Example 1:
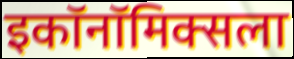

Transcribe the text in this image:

इकॉनॉमिक्सला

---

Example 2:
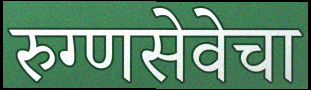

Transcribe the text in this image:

रुग्णसेवेचा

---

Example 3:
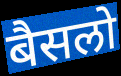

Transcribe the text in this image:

बैसलो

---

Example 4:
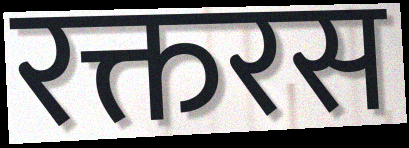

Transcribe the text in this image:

रक्तरस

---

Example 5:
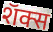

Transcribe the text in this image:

शॅक्स